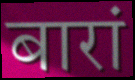
बारां